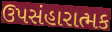
ઉપસંહારાત્મક